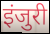
इंजुरी